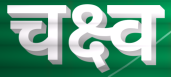
चक्ष्व